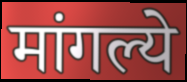
मांगल्ये